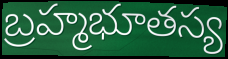
బ్రహ్మభూతస్య